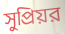
সুপ্রিয়র